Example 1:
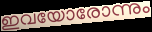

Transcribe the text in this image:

ഇവയോരോന്നും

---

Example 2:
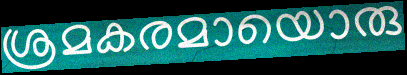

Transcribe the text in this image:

ശ്രമകരമായൊരു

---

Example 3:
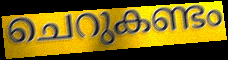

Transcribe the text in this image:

ചെറുകണ്ടം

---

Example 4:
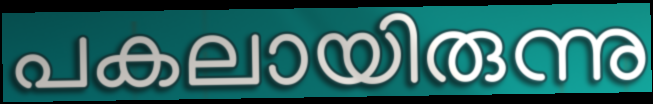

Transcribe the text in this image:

പകലായിരുന്നു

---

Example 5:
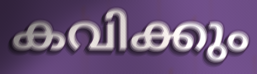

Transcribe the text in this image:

കവിക്കും